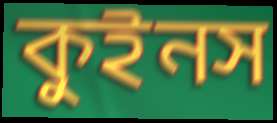
কুইনস